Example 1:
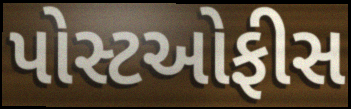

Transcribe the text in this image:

પોસ્ટઓફીસ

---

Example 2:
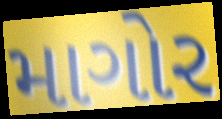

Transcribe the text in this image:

માગોર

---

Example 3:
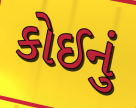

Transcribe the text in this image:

કોઈનું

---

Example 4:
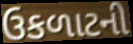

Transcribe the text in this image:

ઉકળાટની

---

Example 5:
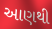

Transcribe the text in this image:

આણથી